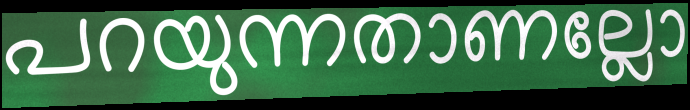
പറയുന്നതാണല്ലോ